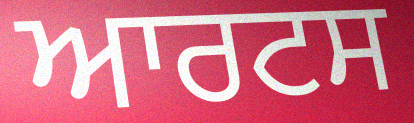
ਆਰਟਸ